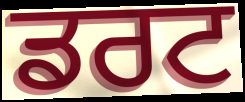
ਡਰਟ